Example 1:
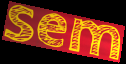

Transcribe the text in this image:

sem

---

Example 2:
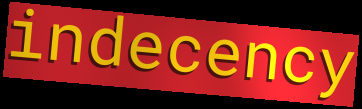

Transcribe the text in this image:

indecency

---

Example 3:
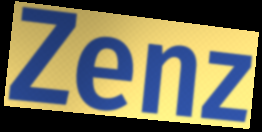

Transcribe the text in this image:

Zenz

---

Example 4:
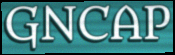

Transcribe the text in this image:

GNCAP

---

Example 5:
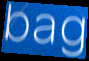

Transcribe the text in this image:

bag